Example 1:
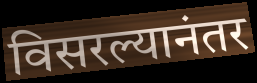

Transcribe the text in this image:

विसरल्यानंतर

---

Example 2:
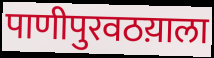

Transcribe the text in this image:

पाणीपुरवठय़ाला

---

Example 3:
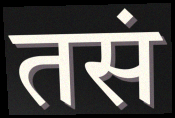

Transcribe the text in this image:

तसं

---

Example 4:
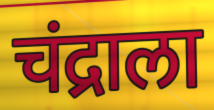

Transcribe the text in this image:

चंद्राला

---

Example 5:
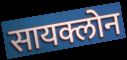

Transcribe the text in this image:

सायक्लोन